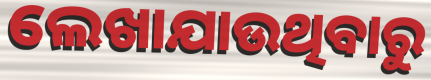
ଲେଖାଯାଉଥିବାରୁ